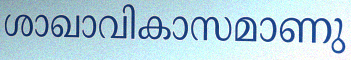
ശാഖാവികാസമാണു